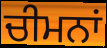
ਚੀਮਨਾਂ